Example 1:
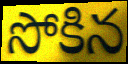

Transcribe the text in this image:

సోకిన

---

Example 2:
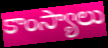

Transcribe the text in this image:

కాంస్యాలు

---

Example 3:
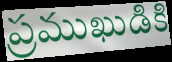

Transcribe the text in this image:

ప్రముఖుడికి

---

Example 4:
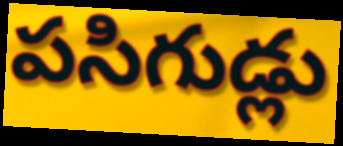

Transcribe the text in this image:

పసిగుడ్లు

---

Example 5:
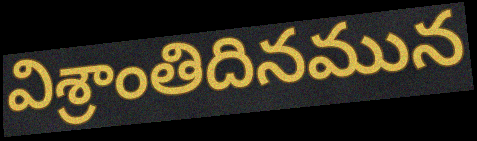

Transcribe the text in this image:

విశ్రాంతిదినమున